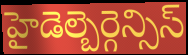
హైడెల్బెర్గెన్సిస్